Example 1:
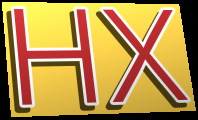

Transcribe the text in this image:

HX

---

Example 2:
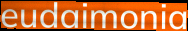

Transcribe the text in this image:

eudaimonia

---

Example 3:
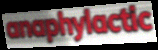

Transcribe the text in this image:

anaphylactic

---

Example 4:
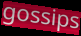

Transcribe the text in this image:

gossips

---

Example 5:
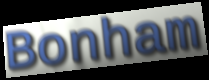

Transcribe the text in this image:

Bonham